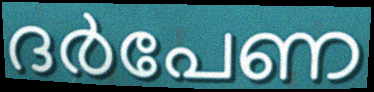
ദർപേണ